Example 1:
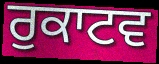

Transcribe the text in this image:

ਰੁਕਾਟਵ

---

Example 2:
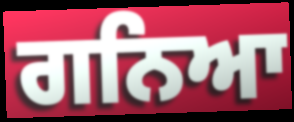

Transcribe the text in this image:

ਗਨਿਆ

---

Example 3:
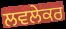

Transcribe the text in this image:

ਲਵਲੇਕਰ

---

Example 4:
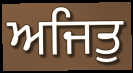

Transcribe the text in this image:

ਅਜਿਤੁ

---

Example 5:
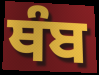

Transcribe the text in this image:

ਥੰਬ